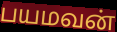
பயமவன்